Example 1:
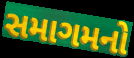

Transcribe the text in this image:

સમાગમનો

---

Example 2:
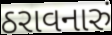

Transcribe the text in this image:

ઠરાવનારું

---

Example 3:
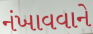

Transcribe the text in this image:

નંખાવવાને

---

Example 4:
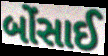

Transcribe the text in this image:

બોંસાઈ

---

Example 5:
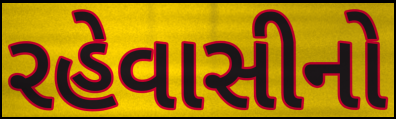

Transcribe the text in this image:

રહેવાસીનો